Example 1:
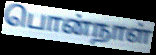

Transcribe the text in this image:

பொன்நாள்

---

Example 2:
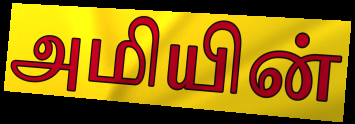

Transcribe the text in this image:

அமியின்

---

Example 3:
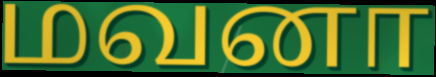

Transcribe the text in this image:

மவனா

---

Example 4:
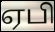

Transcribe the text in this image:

ஏபி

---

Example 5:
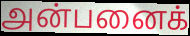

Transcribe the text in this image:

அன்பனைக்